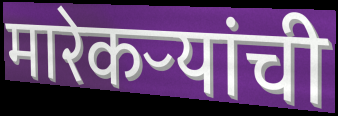
मारेकऱ्यांची